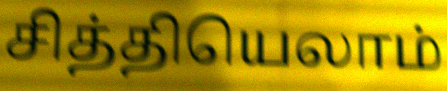
சித்தியெலாம்